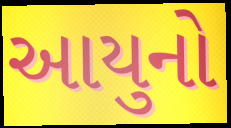
આયુનો